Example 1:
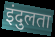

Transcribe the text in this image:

इंदुलता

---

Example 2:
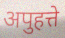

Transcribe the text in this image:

अपुहत्ते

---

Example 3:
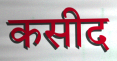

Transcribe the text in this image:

कसीद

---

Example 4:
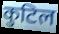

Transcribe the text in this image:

कुटिल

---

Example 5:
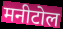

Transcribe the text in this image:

मनीटोल